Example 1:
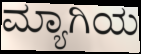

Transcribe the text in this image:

ಮ್ಯಾಗಿಯ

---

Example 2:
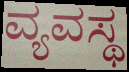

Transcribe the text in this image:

ವ್ಯವಸ್ಥ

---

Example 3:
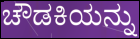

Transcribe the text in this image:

ಚೌಡಕಿಯನ್ನು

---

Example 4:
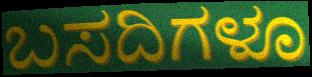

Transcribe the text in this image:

ಬಸದಿಗಳೂ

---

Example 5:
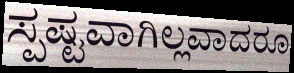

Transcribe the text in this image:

ಸ್ಪಷ್ಟವಾಗಿಲ್ಲವಾದರೂ